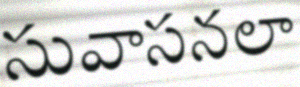
సువాసనలా